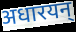
अधारयन्